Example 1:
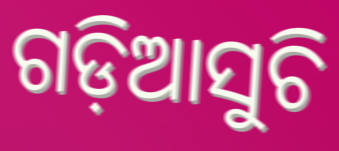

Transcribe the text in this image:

ଗଡ଼ିଆସୁଚି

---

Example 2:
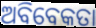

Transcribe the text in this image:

ଅବିବେକତା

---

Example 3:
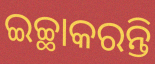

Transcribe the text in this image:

ଇଚ୍ଛାକରନ୍ତି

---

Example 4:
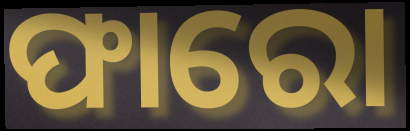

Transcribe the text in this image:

ଫାରୋ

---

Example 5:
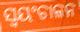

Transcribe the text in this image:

ସ୍ବୟଂଚାଳନ